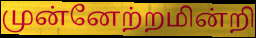
முன்னேற்றமின்றி